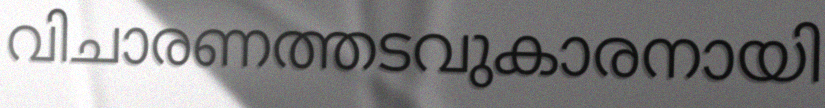
വിചാരണത്തടവുകാരനായി